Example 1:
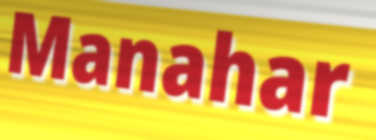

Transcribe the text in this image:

Manahar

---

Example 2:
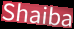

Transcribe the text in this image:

Shaiba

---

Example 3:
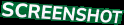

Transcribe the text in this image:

SCREENSHOT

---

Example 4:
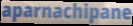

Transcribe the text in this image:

aparnachipane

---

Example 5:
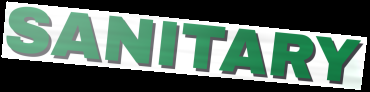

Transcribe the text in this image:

SANITARY